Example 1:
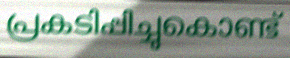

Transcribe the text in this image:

പ്രകടിപ്പിച്ചുകൊണ്ട്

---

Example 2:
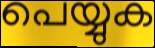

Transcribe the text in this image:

പെയ്യുക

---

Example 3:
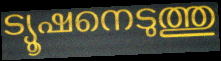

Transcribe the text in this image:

ട്യൂഷനെടുത്തു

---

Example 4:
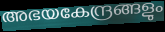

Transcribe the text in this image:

അഭയകേന്ദ്രങ്ങളും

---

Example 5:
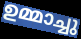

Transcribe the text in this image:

ഉമ്മാച്ചു